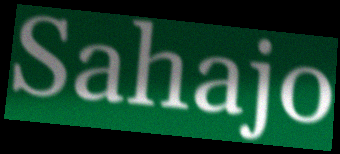
Sahajo